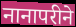
नानापरीने